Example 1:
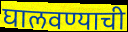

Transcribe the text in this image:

घालवण्याची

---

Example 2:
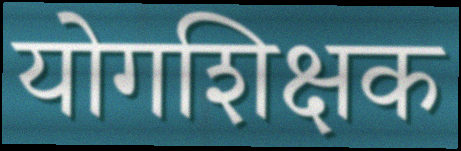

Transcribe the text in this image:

योगशिक्षक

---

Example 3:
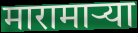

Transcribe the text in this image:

मारामाऱ्या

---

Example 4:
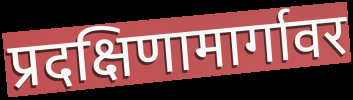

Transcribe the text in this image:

प्रदक्षिणामार्गावर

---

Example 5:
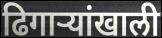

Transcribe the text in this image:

ढिगाऱ्यांखाली